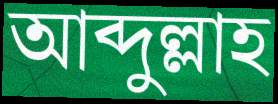
আব্দুল্লাহ